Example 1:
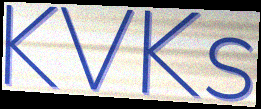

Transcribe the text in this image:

KVKs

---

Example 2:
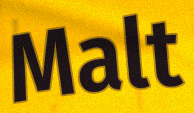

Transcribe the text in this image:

Malt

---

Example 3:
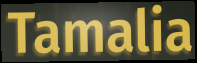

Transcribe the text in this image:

Tamalia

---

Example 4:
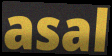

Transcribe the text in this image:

asal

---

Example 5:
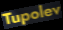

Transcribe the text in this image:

Tupolev